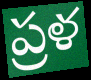
ప్రళ